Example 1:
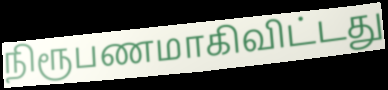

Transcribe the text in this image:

நிரூபணமாகிவிட்டது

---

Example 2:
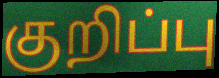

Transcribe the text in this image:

குறிப்பு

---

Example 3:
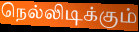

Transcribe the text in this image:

நெல்லிடிக்கும்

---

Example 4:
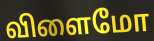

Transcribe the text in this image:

விளைமோ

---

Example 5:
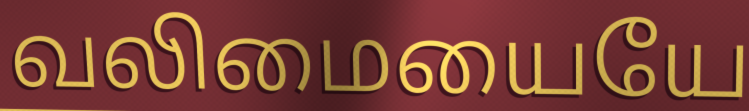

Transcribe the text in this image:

வலிமையையே